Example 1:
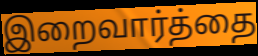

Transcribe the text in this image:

இறைவார்த்தை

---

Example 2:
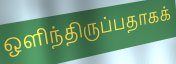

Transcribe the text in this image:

ஒளிந்திருப்பதாகக்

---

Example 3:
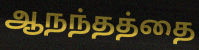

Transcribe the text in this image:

ஆநந்தத்தை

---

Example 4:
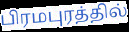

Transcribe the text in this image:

பிரமபுரத்தில்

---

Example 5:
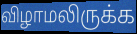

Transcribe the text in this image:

விழாமலிருக்க